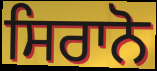
ਸਿਰਾਨੋ